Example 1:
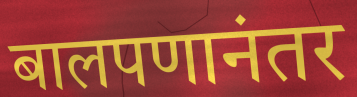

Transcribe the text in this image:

बालपणानंतर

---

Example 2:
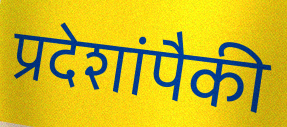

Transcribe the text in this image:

प्रदेशांपैकी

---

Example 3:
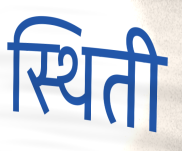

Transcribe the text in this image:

स्थिती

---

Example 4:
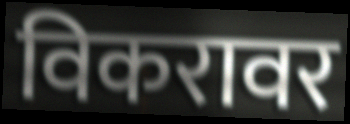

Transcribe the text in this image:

विकरावर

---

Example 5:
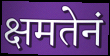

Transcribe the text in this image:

क्षमतेनं